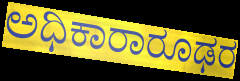
ಅಧಿಕಾರಾರೂಢರ